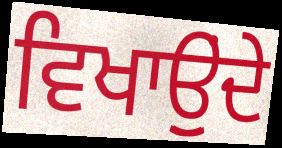
ਵਿਖਾਉੁਂਦੇ